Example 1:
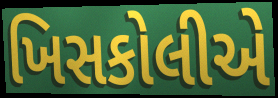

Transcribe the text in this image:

ખિસકોલીએ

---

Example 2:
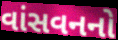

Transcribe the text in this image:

વાંસવનનો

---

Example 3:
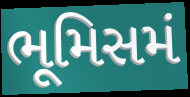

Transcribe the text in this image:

ભૂમિસમં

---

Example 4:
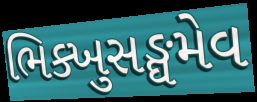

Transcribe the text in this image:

ભિક્ખુસઙ્ઘમેવ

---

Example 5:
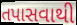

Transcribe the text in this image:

તપાસવાથી